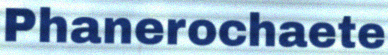
Phanerochaete